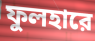
ফুলহারে